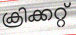
ക്രിക്കറ്റ്